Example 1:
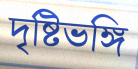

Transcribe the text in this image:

দৃষ্টিভঙ্গি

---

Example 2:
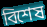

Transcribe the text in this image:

বিশেষ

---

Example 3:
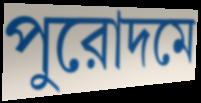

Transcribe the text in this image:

পুরোদমে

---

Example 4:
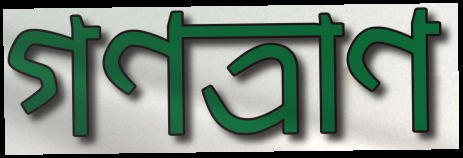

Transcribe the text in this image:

গণত্রাণ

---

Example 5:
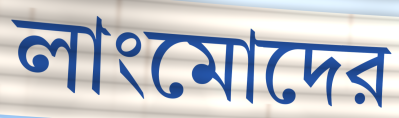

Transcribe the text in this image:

লাংমোদের